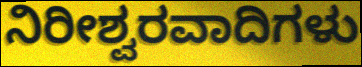
ನಿರೀಶ್ವರವಾದಿಗಳು